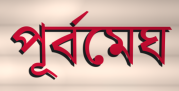
পূর্বমেঘ